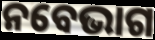
ନବେଭାଗ